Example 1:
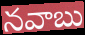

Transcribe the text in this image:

నవాబు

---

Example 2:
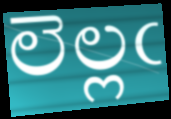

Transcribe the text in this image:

లెల్లఁ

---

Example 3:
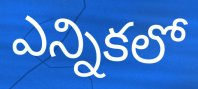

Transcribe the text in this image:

ఎన్నికలో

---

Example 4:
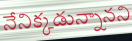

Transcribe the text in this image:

నేనిక్కడున్నానని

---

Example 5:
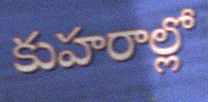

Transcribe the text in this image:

కుహరాల్లో